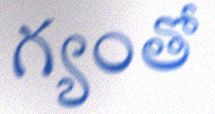
గ్యంతో